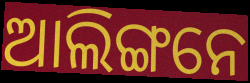
ଆଲିଙ୍ଗନେ